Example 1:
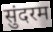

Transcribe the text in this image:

सुंदरम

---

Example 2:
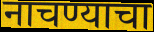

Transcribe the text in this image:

नाचण्याचा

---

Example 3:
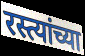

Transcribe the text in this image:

रस्त्यांच्या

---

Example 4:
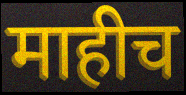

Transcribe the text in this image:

माहीच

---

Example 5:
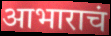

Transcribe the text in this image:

आभाराचं